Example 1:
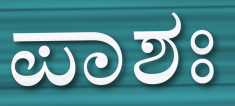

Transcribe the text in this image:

ಪಾಶಃ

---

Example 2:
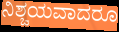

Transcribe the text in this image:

ನಿಶ್ಚಯವಾದರೂ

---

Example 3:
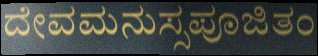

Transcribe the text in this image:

ದೇವಮನುಸ್ಸಪೂಜಿತಂ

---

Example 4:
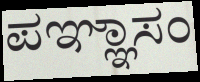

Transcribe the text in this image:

ಪಞ್ಞಾಸಂ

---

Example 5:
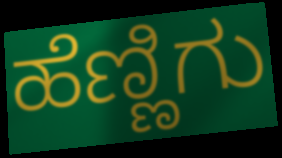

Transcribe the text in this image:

ಹೆಣ್ಣಿಗು